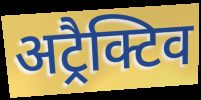
अट्रैक्टिव